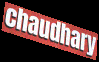
chaudhary